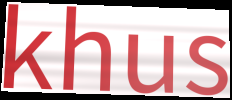
khus